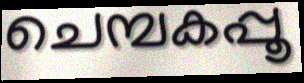
ചെമ്പകപ്പൂ